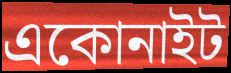
একোনাইট